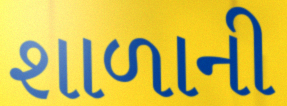
શાળાની